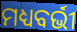
ମଧ୍ଯବର୍ଭୀ